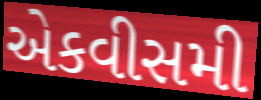
એકવીસમી